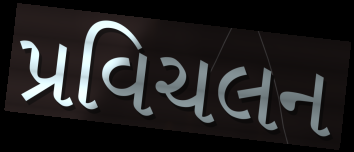
પ્રવિચલન